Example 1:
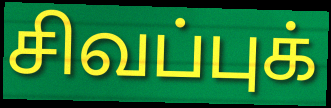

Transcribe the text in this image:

சிவப்புக்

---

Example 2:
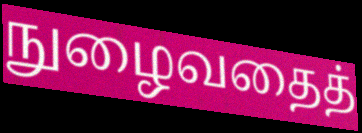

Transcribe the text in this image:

நுழைவதைத்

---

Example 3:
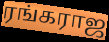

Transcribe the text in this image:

ரங்கராஜ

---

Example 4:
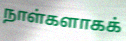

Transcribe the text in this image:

நாள்களாகக்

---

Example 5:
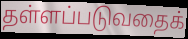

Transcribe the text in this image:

தள்ளப்படுவதைக்